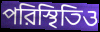
পরিস্থিতিও